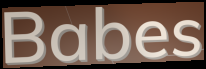
Babes